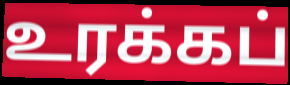
உரக்கப்